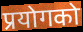
प्रयोगको